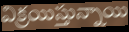
విక్రయిస్తున్నాయి